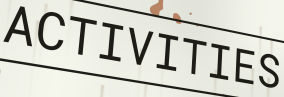
ACTIVITIES